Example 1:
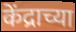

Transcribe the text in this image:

केंद्राच्या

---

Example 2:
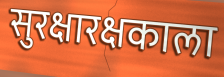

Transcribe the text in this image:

सुरक्षारक्षकाला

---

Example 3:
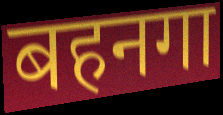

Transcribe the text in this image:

बहनगा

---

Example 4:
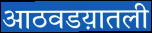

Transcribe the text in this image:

आठवडय़ातली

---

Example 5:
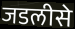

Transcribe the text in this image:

जडलीसे